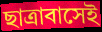
ছাত্রাবাসেই